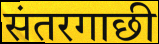
संतरगाछी